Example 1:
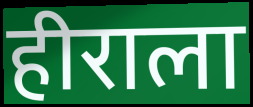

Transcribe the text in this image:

हीराला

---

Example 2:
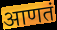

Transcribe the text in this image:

आणतं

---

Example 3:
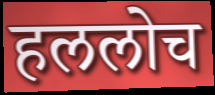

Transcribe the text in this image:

हललोच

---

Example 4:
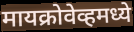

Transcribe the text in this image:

मायक्रोवेव्हमध्ये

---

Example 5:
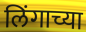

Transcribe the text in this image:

लिंगाच्या